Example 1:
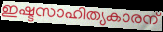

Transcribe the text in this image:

ഇഷ്ടസാഹിത്യകാരന്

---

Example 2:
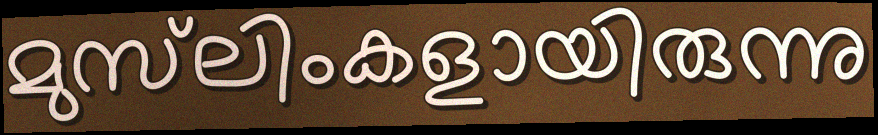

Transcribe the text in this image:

മുസ്‌ലിംകളായിരുന്നു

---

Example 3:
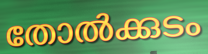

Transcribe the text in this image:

തോൽക്കുടം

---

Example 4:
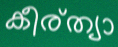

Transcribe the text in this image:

കീര്ത്യാ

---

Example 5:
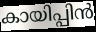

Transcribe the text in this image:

കായിപ്പിൻ